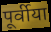
पूर्वीया